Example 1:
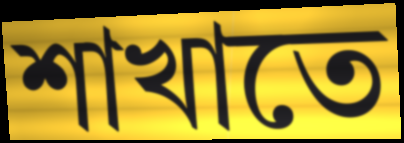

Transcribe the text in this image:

শাখাতে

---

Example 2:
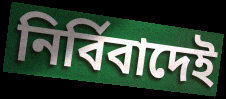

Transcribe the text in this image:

নির্বিবাদেই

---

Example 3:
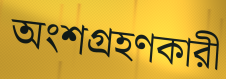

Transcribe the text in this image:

অংশগ্রহণকারী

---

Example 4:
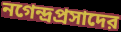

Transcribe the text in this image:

নগেন্দ্রপ্রসাদের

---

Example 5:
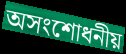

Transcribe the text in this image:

অসংশোধনীয়